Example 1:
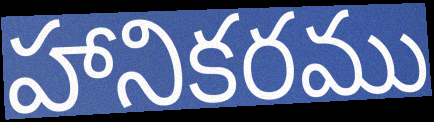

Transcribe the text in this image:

హానికరము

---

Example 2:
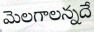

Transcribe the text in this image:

మెలగాలన్నదే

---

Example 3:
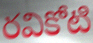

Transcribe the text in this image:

రవికోటి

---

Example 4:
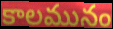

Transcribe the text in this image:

కాలమునం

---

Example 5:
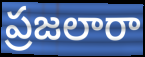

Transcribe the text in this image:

ప్రజలారా